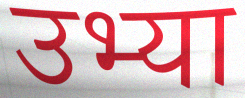
उभ्या